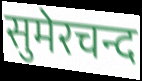
सुमेरचन्द